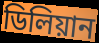
ডিলিয়ান